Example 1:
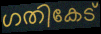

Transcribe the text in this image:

ഗതികേട്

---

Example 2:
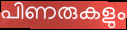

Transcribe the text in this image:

പിണരുകളും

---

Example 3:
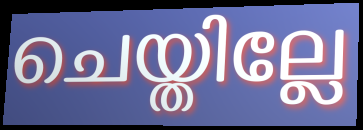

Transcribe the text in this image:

ചെയ്തില്ലേ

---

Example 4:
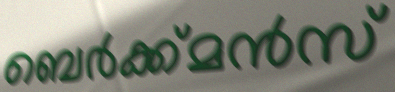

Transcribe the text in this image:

ബെർക്ക്മൻസ്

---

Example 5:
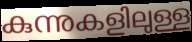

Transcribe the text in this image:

കുന്നുകളിലുള്ള